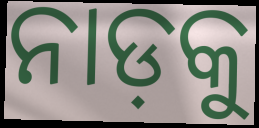
ନାଡ଼କୁ